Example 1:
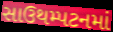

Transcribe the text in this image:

સાઉથમ્પટનમાં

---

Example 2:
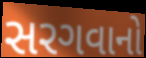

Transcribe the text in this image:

સરગવાનો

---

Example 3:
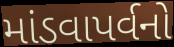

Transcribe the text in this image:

માંડવાપર્વનો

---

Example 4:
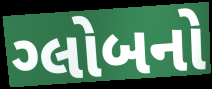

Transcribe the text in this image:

ગ્લોબનો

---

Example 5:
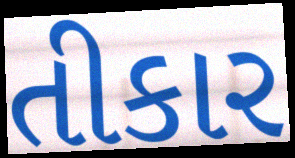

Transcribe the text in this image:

તીકાર